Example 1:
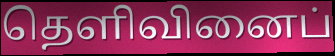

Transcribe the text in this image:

தெளிவினைப்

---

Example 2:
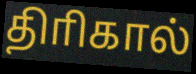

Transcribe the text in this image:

திரிகால்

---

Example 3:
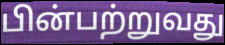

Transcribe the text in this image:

பின்பற்றுவது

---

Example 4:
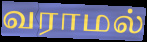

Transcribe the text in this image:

வராமல்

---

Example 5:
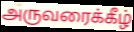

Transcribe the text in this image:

அருவரைக்கீழ்